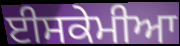
ਈਸਕੇਮੀਆ